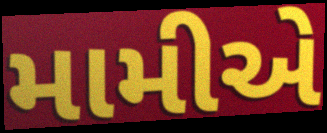
મામીએ